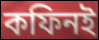
কফিনই